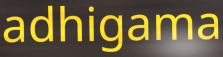
adhigama